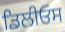
ਡਿਲੀਓਸ